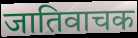
जातिवाचक